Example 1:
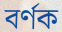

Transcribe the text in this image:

বৰ্ণক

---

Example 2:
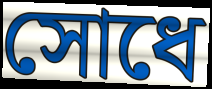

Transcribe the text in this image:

সোধে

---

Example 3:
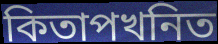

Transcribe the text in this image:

কিতাপখনিত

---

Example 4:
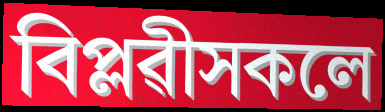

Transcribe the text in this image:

বিপ্লৱীসকলে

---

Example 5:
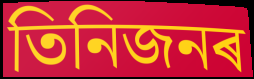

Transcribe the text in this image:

তিনিজনৰ